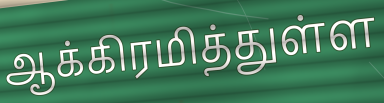
ஆக்கிரமித்துள்ள